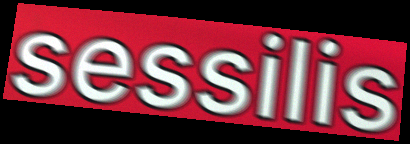
sessilis